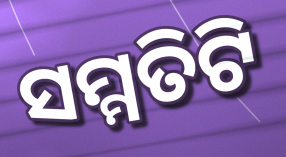
ସମ୍ମତିଟି